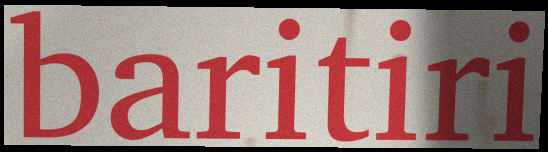
baritiri